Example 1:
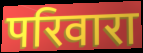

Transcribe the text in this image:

परिवारा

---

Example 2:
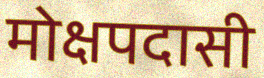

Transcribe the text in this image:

मोक्षपदासी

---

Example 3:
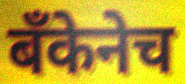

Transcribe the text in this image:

बँकेनेच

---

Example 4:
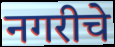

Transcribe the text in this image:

नगरीचे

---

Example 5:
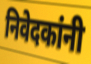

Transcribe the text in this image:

निवेदकांनी